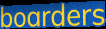
boarders